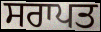
ਸਰਾਪਤ